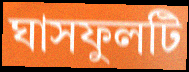
ঘাসফুলটি